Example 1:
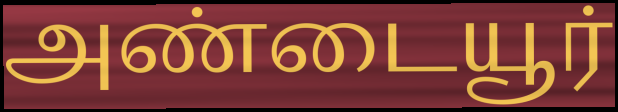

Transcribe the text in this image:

அண்டையூர்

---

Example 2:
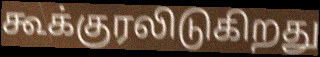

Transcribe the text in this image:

கூக்குரலிடுகிறது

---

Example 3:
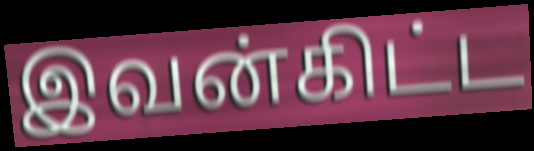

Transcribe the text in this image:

இவன்கிட்ட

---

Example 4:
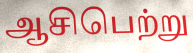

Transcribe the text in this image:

ஆசிபெற்று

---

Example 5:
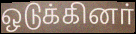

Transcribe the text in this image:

ஒடுக்கினர்